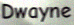
Dwayne